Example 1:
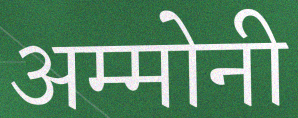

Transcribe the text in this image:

अम्मोनी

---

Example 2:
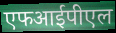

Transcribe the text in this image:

एफआईपीएल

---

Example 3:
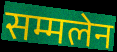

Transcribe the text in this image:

सम्मलेन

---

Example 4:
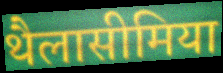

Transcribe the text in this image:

थैलासीमिया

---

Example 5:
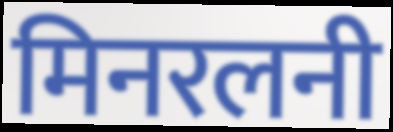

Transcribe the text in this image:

मिनरलनी